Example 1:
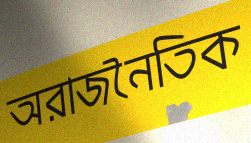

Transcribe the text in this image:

অরাজনৈতিক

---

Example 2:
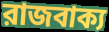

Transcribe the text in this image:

রাজবাক্য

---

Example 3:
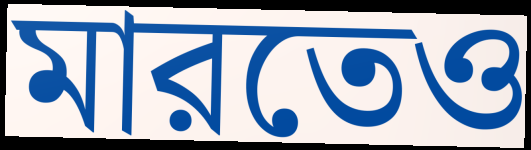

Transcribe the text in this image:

মারতেও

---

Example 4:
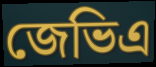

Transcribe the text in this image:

জেভিএ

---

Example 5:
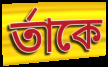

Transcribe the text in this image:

র্তাকে